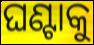
ଘଣ୍ଟାକୁ